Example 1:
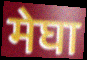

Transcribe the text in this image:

मेघा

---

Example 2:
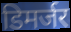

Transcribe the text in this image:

डिमर्जर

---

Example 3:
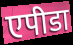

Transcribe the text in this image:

एपीडा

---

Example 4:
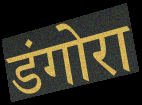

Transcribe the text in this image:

डंगोरा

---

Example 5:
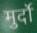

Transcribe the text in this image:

मुर्दो